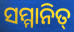
ସମ୍ମାନିତ୍